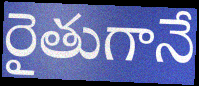
రైతుగానే